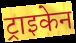
ट्राइकेन